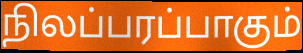
நிலப்பரப்பாகும்